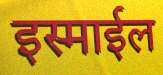
इस्माईल